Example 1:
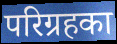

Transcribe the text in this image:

परिग्रहका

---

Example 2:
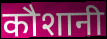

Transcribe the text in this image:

कौशानी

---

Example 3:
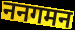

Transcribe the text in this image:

ननगमन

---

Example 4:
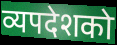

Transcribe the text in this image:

व्यपदेशको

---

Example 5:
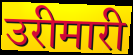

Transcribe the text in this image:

उरीमारी